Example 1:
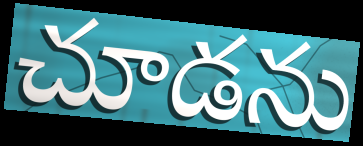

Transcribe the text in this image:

చూడను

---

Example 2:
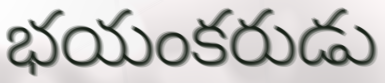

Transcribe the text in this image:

భయంకరుడు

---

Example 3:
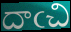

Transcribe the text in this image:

దాఁచి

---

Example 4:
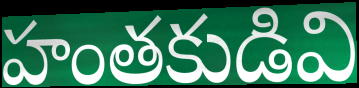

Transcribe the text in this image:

హంతకుడివి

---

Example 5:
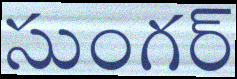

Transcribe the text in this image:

సుంగర్